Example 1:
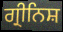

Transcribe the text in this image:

ਗ੍ਰੀਨਿਸ਼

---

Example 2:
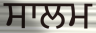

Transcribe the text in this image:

ਸਾਲਮ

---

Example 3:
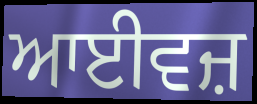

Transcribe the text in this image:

ਆਈਵਜ਼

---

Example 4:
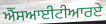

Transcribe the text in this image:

ਐੱਸਆਈਟੀਆਰਏ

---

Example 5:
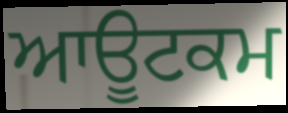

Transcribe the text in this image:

ਆਊਟਕਮ